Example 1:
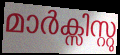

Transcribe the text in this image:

മാർക്സിസ്റ്റു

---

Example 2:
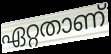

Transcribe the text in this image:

ഏറ്റതാണ്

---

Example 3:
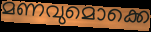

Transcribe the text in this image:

മണവുമൊക്കെ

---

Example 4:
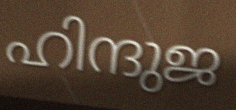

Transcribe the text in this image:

ഹിന്ദുജ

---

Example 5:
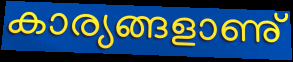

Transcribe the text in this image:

കാര്യങ്ങളാണു്